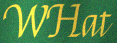
WHat